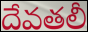
దేవతలీ